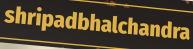
shripadbhalchandra